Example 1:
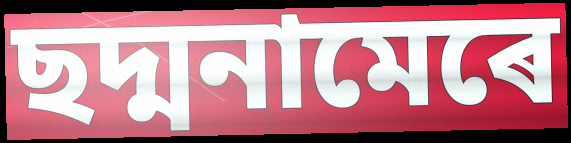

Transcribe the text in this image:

ছদ্মনামেৰে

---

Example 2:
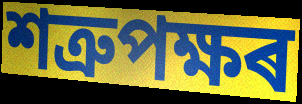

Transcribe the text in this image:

শত্ৰুপক্ষৰ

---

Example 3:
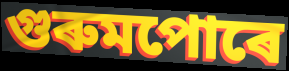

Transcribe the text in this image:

গুৰুমপোৰে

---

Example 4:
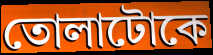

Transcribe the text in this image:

তোলাটোকে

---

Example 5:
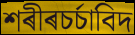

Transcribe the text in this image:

শৰীৰচৰ্চাবিদ